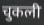
चुकली